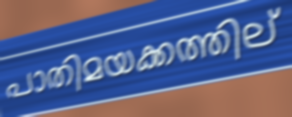
പാതിമയക്കത്തില്